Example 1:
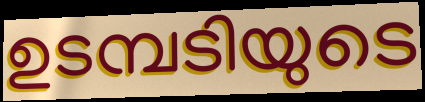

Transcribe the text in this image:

ഉടമ്പടിയുടെ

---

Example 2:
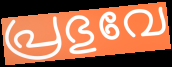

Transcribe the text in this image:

പ്രഭുവേ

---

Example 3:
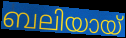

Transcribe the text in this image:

ബലിയായ്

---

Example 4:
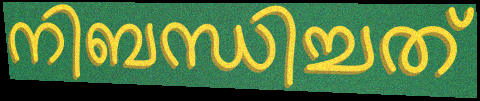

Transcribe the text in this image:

നിബന്ധിച്ചത്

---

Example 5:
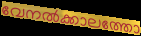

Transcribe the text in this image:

വേനൽക്കാലത്തോ